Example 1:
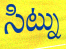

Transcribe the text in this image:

సిట్ను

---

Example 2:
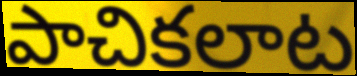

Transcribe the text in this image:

పాచికలాట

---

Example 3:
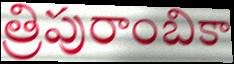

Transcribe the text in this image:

త్రిపురాంబికా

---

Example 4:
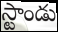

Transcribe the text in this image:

స్టాండు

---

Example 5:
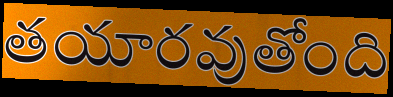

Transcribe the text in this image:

తయారవుతోంది